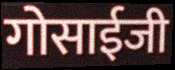
गोसाईजी